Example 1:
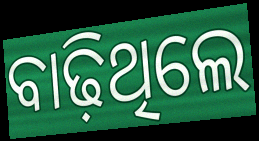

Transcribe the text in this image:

ବାଢ଼ିଥିଲେ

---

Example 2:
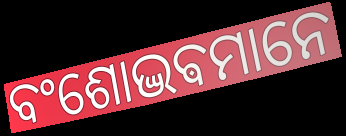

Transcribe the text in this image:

ବଂଶୋଦ୍ଭଵମାନେ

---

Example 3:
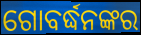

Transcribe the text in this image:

ଗୋବର୍ଦ୍ଧନଙ୍କର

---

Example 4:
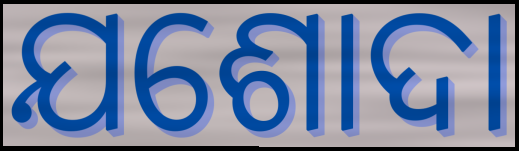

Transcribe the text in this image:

ଯଶୋଦା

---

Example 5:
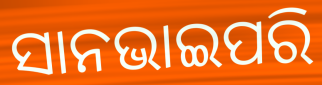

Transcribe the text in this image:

ସାନଭାଇପରି